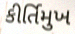
કીર્તિમુખ